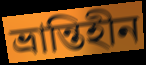
ভ্রান্তিহীন